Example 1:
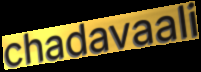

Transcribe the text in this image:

chadavaali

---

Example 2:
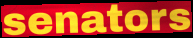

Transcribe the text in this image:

senators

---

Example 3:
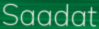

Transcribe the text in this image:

Saadat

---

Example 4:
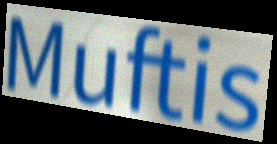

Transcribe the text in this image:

Muftis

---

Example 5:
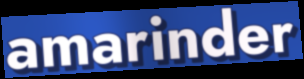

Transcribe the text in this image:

amarinder